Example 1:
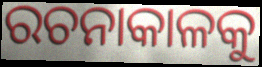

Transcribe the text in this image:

ରଚନାକାଳକୁ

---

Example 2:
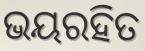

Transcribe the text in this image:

ଭୟରହିତ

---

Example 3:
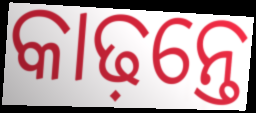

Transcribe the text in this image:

କାଢ଼ନ୍ତେ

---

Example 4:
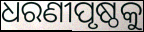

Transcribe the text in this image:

ଧରଣୀପୃଷ୍ଠକୁ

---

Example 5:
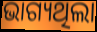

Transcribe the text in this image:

ଭାଗ୍ୟଥିଲା